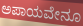
ಅಪಾಯವೇನೂ